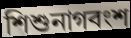
শিশুনাগবংশ